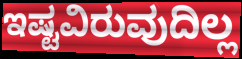
ಇಷ್ಟವಿರುವುದಿಲ್ಲ